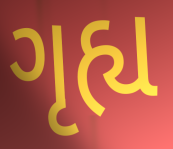
ગૃહ્ય